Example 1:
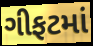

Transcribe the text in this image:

ગીફટમાં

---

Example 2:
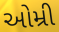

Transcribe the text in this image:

ઓમ્રી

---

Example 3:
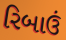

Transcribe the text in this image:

રિબાઉં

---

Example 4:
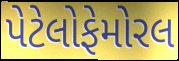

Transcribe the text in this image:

પેટેલોફેમોરલ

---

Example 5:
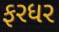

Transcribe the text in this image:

ફરધર